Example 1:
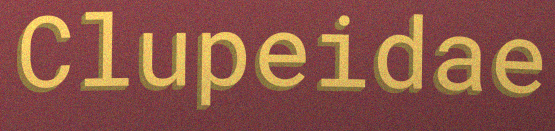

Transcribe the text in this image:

Clupeidae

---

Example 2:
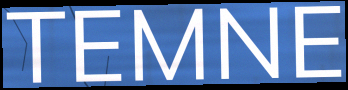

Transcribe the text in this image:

TEMNE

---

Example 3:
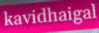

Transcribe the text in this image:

kavidhaigal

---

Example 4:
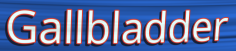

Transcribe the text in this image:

Gallbladder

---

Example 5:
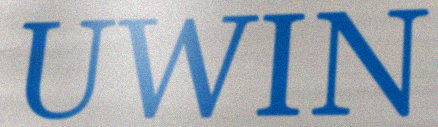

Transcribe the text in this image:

UWIN